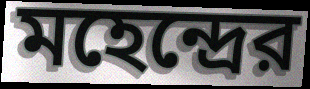
মহেন্দ্রের